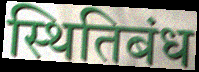
स्थितिबंध